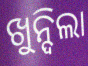
ଖୁନ୍ଦିଲା